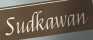
Sudkawan